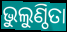
ଭୁଲୁଣ୍ଠିତା